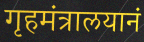
गृहमंत्रालयानं